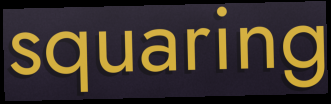
squaring